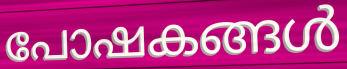
പോഷകങ്ങൾ